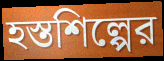
হস্তশিল্পের